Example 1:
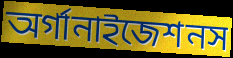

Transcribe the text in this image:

অর্গানাইজেশনস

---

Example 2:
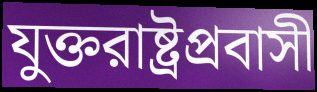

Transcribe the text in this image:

যুক্তরাষ্ট্রপ্রবাসী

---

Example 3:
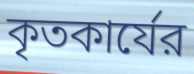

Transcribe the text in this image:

কৃতকার্যের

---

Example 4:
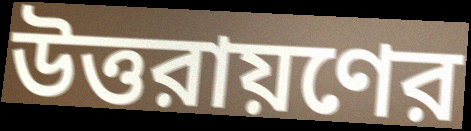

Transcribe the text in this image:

উত্তরায়ণের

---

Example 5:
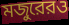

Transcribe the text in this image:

মজুরেরও